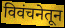
विवंचनेतून